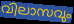
വിലാസവും